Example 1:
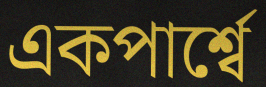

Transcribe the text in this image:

একপার্শ্বে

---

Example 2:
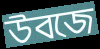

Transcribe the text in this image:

উবজে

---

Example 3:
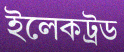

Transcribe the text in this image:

ইলেকট্রড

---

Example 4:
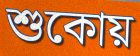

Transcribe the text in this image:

শুকোয়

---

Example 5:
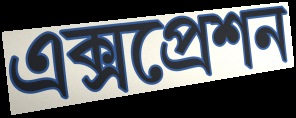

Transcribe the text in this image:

এক্সপ্রেশন